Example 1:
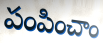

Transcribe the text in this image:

పంపించాం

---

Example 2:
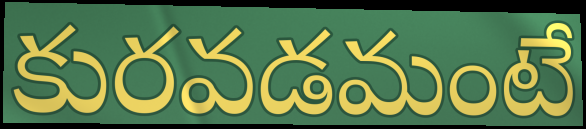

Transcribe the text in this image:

కురవడమంటే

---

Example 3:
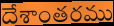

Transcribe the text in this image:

దేశాంతరము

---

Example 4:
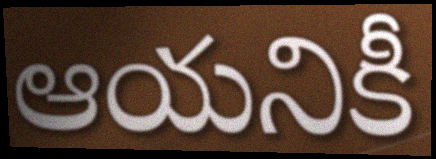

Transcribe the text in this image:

ఆయనికీ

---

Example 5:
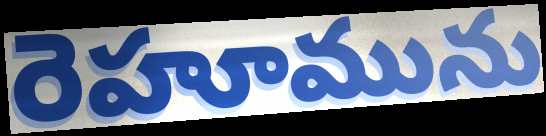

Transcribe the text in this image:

రెహూమును